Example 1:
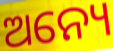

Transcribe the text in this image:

ଅନ୍ୟେ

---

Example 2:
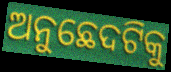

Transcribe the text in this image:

ଅନୁଛେଦଟିକୁ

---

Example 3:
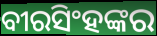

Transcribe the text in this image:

ବୀରସିଂହଙ୍କର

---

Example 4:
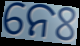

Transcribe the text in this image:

ନେଃ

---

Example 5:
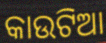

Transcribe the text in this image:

କାଉଟିଆ